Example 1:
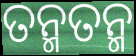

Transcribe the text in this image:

ତନ୍ମତନ୍ମ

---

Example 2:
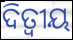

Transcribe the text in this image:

ଦିତ୍ୱୀୟ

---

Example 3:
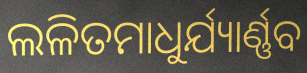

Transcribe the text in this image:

ଲଳିତମାଧୁର୍ଯ୍ୟାର୍ଣ୍ଣବ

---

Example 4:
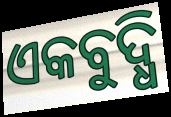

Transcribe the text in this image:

ଏକବୁଦ୍ଧି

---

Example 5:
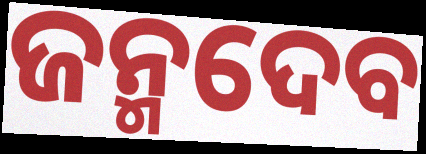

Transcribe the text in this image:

ଜନ୍ମଦେବ